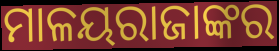
ମାଳୟରାଜାଙ୍କର